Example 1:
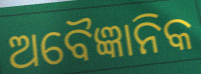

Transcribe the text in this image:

ଅବୈଜ୍ଞାନିକ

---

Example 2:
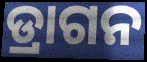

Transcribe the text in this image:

ଡ୍ରାଗନ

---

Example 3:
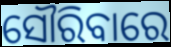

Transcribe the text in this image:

ସୌରିବାରେ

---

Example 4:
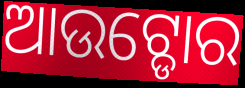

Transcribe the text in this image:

ଆଉଟ୍ଡୋର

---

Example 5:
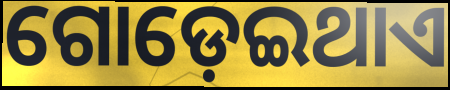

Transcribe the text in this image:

ଗୋଡ଼େଇଥାଏ